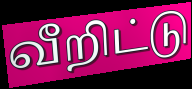
வீறிட்டு